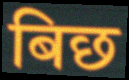
बिछ